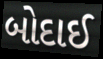
બોદાઈ